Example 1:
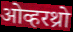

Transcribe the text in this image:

ओव्हरथ्रो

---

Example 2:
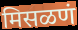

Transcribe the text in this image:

मिसळणं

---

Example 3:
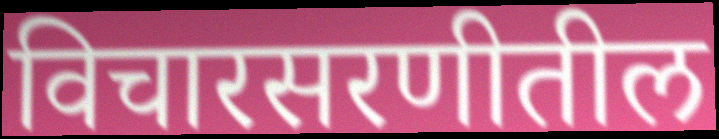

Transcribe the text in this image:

विचारसरणीतील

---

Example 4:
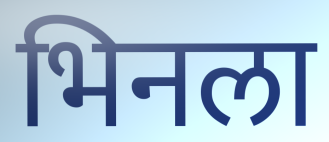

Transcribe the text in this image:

भिनला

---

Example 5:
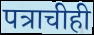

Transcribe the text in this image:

पत्राचीही